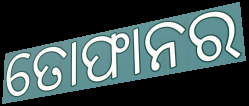
ତୋଫାନର